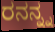
ರನನ್ನ್ನ